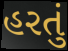
હરતું